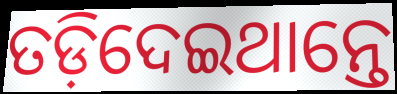
ତଡ଼ିଦେଇଥାନ୍ତେ